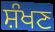
ਸ਼ੰਖਣ